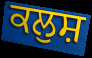
ਕਲੁਸ਼